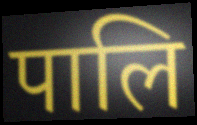
पालि